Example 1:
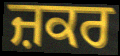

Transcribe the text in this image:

ਜ਼ਕਰ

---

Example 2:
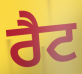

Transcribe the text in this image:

ਰੈਟ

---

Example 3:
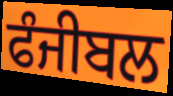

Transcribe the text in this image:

ਫੰਜੀਬਲ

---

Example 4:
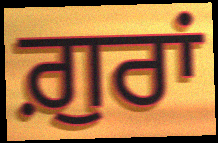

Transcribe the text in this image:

ਗ਼ੁਰਾਂ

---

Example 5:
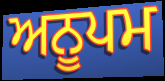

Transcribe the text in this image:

ਅਨੂਪਮ